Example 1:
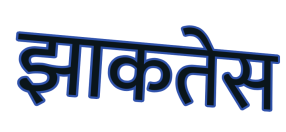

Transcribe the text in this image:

झाकतेस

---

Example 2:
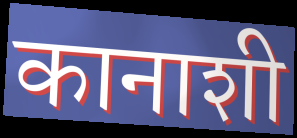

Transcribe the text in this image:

कानाशी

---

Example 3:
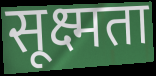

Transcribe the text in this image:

सूक्ष्मता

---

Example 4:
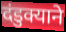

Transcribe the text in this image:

दंडुक्याने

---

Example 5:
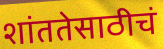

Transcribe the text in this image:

शांततेसाठीचं